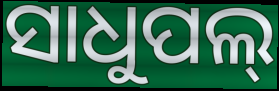
ସାଧୁପଲ୍